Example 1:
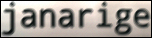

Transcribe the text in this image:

janarige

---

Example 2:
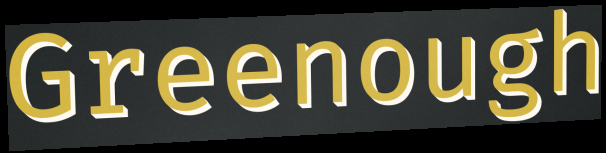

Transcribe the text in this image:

Greenough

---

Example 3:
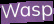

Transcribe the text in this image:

Wasp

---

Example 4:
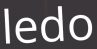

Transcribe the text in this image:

ledo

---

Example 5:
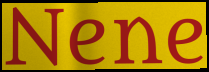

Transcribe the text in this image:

Nene